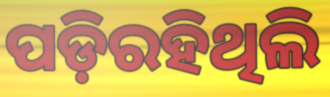
ପଡ଼ିରହିଥିଲି